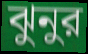
ঝুনুর